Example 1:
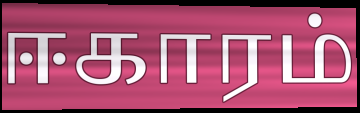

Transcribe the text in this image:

ஈகாரம்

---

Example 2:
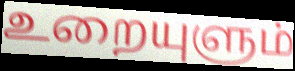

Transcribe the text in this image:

உறையுளும்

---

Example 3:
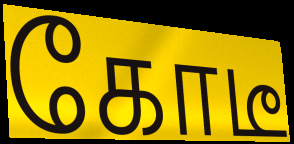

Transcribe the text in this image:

கோடீ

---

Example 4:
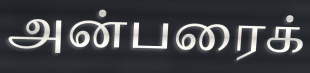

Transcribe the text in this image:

அன்பரைக்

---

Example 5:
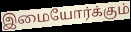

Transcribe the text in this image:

இமையோர்க்கும்